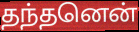
தந்தனென்